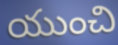
యుంచి